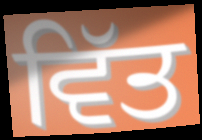
ਵਿੱਤ